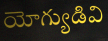
యోగ్యుడివి